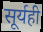
सूर्यही